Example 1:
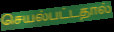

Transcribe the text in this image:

செயல்பட்டதால்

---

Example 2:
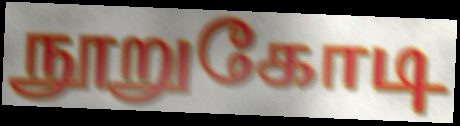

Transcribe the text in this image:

நூறுகோடி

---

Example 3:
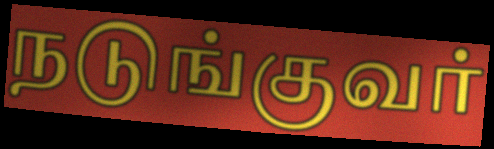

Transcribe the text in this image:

நடுங்குவர்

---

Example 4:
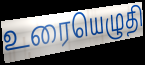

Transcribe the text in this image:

உரையெழுதி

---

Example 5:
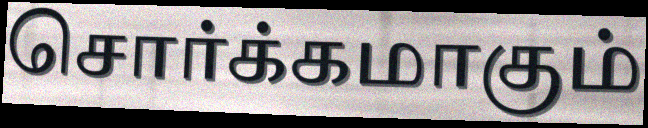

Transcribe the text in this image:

சொர்க்கமாகும்